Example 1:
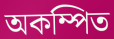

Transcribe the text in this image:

অকম্পিত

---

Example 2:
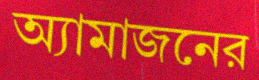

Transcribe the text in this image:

অ্যামাজনের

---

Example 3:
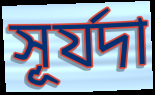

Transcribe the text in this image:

সূর্যদা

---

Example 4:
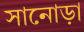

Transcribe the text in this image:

সানোড়া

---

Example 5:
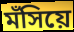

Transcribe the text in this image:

মঁসিয়ে